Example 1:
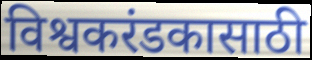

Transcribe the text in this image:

विश्वकरंडकासाठी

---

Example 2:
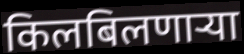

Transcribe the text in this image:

किलबिलणाऱ्या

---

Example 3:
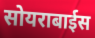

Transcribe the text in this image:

सोयराबाईस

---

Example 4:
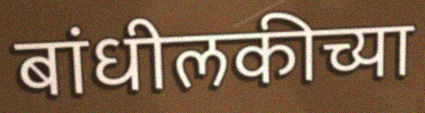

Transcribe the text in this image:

बांधीलकीच्या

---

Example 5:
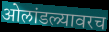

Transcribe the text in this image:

ओलांडल्यावरच